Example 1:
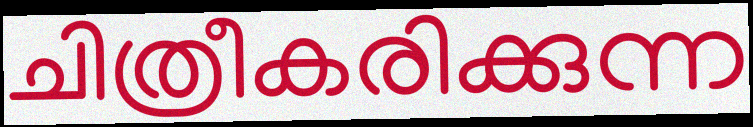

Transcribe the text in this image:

ചിത്രീകരിക്കുന്ന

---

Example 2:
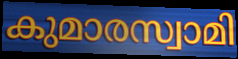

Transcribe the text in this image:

കുമാരസ്വാമി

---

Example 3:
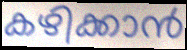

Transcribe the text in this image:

കഴിക്കാൻ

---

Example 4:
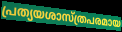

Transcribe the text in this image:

പ്രത്യയശാസ്ത്രപരമായ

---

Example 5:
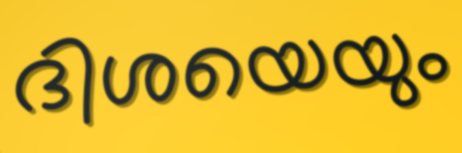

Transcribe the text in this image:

ദിശയെയും